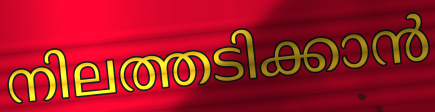
നിലത്തടിക്കാൻ